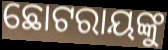
ଛୋଟରାୟଙ୍କୁ